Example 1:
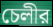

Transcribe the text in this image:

চেলীর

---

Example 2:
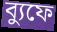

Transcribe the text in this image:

ব্যুফে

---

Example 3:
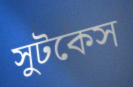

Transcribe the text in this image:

সুটকেস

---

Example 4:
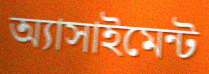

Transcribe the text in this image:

অ্যাসাইমেন্ট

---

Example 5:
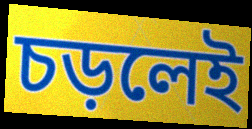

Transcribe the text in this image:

চড়লেই